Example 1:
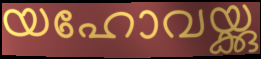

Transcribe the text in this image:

യഹോവയ്ക്കു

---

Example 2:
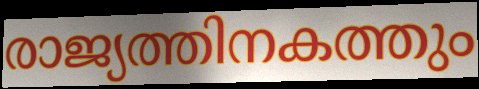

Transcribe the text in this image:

രാജ്യത്തിനകത്തും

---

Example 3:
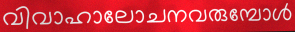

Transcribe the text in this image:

വിവാഹാലോചനവരുമ്പോൾ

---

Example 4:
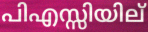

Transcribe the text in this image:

പിഎസ്സിയില്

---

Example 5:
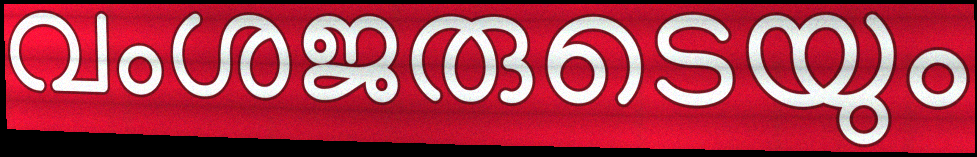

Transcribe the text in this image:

വംശജരുടെയും